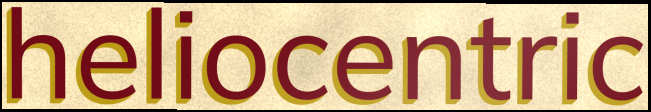
heliocentric